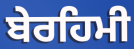
ਬੇਰਹਿਮੀ